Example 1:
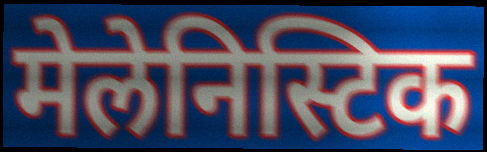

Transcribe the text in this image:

मेलेनिस्टिक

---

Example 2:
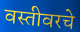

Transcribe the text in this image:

वस्तीवरचे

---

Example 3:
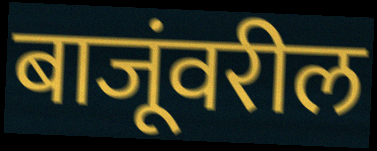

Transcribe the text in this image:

बाजूंवरील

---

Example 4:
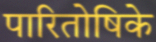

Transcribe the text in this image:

पारितोषिके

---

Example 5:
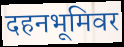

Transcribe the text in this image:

दहनभूमिवर